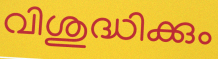
വിശുദ്ധിക്കും